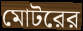
মোটরের